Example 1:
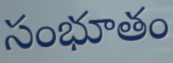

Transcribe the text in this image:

సంభూతం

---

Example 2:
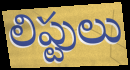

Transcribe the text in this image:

లిప్టులు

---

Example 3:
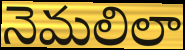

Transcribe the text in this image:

నెమలిలా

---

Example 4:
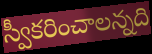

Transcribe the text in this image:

స్వీకరించాలన్నది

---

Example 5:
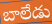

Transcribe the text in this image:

బాలేడు